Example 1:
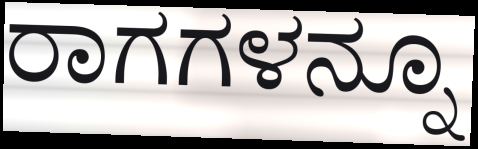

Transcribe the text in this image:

ರಾಗಗಳನ್ನೂ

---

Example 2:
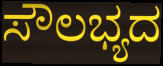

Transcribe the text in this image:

ಸೌಲಭ್ಯದ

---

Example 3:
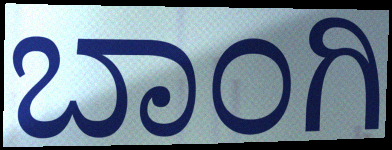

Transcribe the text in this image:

ಬಾಂಗಿ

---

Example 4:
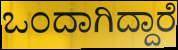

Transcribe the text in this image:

ಒಂದಾಗಿದ್ದಾರೆ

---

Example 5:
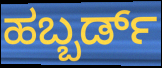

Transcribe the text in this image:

ಹಬ್ಬರ್ಡ್